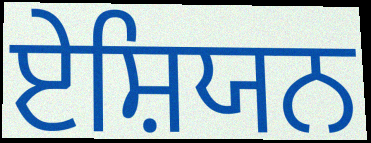
ਏਸ਼ਿਯਨ